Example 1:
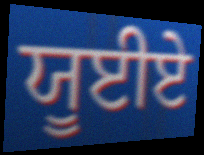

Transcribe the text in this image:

ਯੂਈਏ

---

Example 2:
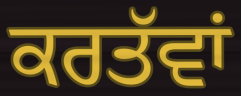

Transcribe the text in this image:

ਕਰਤੱਵਾਂ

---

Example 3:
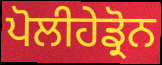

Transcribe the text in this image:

ਪੋਲੀਹੇਡ੍ਰੋਨ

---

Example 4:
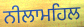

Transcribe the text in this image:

ਨੀਲਾਮਹਿਲ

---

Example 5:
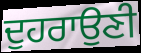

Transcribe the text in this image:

ਦੁਹਰਾਉਣੀ